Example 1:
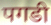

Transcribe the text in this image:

पगडी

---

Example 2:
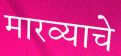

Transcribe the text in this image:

मारव्याचे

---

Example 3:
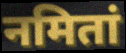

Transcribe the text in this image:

नमितां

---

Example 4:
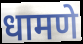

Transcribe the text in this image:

धामणे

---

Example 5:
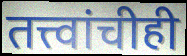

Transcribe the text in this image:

तत्त्वांचीही